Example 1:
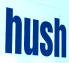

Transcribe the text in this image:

hush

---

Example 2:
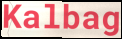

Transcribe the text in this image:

Kalbag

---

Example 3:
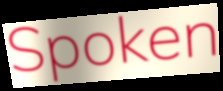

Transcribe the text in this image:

Spoken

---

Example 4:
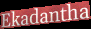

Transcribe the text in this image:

Ekadantha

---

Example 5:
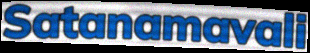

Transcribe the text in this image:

Satanamavali